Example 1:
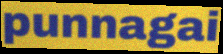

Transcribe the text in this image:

punnagai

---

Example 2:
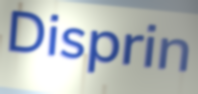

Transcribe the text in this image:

Disprin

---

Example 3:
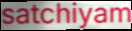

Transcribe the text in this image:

satchiyam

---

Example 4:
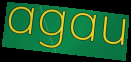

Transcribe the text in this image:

agau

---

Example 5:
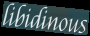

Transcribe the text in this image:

libidinous